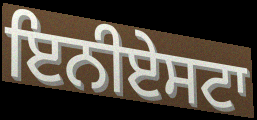
ਇਨੀਏਸਟਾ